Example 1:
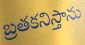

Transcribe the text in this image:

బ్రతకనిస్తాను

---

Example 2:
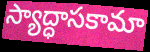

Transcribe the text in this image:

స్యాద్ధాసకామా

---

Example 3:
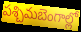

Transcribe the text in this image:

పశ్చిమబెంగాల్లో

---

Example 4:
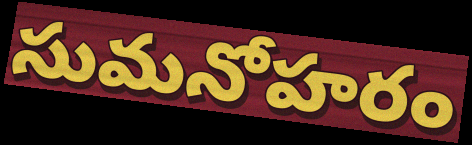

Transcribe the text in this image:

సుమనోహరం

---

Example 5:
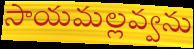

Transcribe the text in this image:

సాయమల్లవ్వను